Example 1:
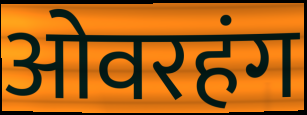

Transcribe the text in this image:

ओवरहंग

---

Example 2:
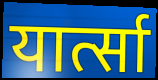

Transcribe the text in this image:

यार्त्सा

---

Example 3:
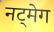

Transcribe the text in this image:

नट्मेग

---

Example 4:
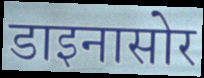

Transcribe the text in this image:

डाइनासोर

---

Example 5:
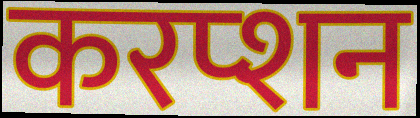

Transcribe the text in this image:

करप्‍शन